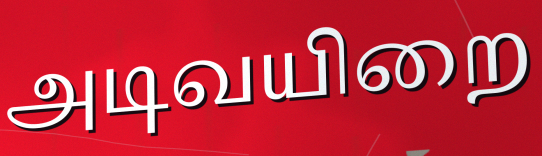
அடிவயிறை